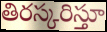
తిరస్కరిస్తూ